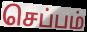
செப்பம்